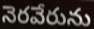
నెరవేరును